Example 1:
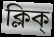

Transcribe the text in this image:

ক্লিক্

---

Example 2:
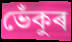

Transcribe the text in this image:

ভেঁকুৰ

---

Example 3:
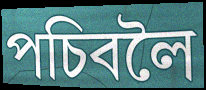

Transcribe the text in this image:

পচিবলৈ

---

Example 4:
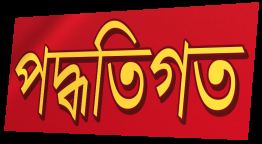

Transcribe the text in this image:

পদ্ধতিগত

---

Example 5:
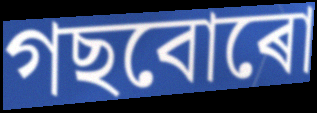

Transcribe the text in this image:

গছবোৰো